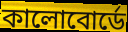
কালোবোর্ডে